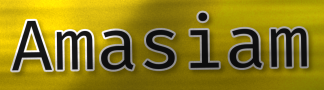
Amasiam